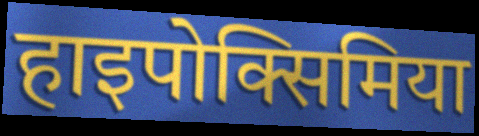
हाइपोक्सिमिया